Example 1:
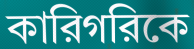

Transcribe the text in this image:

কারিগরিকে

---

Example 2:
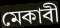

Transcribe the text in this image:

মেকাবী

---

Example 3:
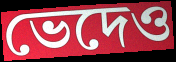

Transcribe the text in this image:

ভেদেও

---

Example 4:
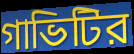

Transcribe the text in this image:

গাভিটির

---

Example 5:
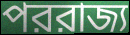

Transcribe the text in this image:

পররাজ্য